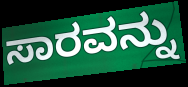
ಸಾರವನ್ನು